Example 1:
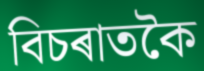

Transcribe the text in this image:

বিচৰাতকৈ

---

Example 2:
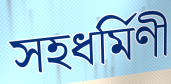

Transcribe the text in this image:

সহধৰ্মিণী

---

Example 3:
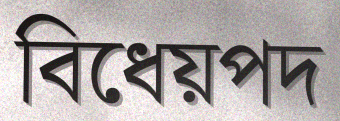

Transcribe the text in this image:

বিধেয়পদ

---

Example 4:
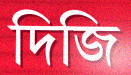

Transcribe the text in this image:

দিজি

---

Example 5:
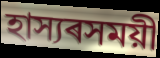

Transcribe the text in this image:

হাস্যৰসময়ী